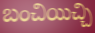
బంచియిచ్చి